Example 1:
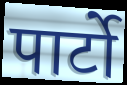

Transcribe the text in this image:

पार्टो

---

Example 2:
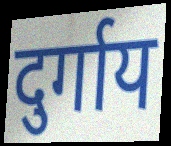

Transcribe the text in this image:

दुर्गाय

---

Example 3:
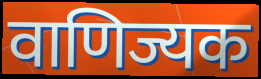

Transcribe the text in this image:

वाणिज्यक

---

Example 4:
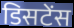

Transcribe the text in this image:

डिसटेंस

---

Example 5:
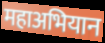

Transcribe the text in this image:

महाअभियान